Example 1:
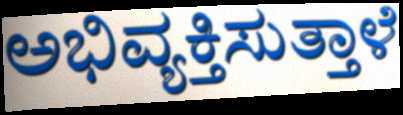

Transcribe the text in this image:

ಅಭಿವ್ಯಕ್ತಿಸುತ್ತಾಳೆ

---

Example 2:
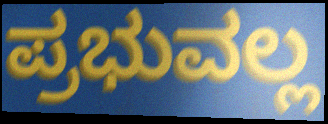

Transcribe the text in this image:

ಪ್ರಭುವಲ್ಲ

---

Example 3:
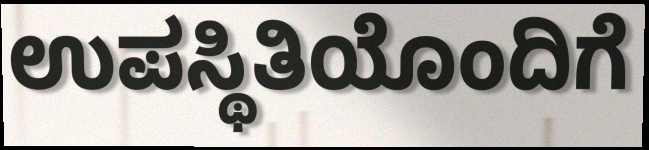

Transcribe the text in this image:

ಉಪಸ್ಥಿತಿಯೊಂದಿಗೆ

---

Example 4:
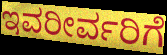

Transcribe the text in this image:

ಇವರೀರ್ವರಿಗೆ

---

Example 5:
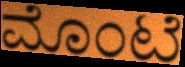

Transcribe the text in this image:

ಮೊಂಟೆ